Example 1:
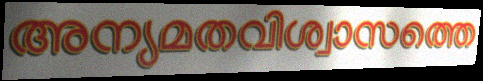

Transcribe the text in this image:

അന്യമതവിശ്വാസത്തെ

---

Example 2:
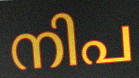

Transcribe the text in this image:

നിപ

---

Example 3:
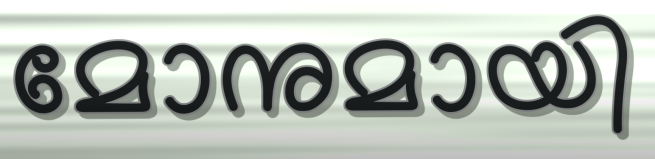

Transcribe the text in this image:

മോനുമായി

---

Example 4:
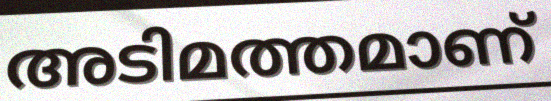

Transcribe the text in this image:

അടിമത്തമാണ്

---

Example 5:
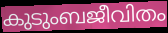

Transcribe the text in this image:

കുടുംബജീവിതം